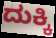
ದುಕ್ಕಿ